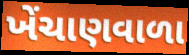
ખેંચાણવાળા